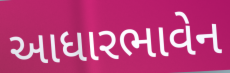
આધારભાવેન